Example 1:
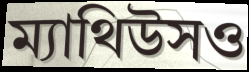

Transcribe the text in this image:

ম্যাথিউসও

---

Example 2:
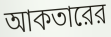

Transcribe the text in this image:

আকতারের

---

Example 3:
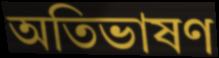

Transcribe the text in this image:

অতিভাষণ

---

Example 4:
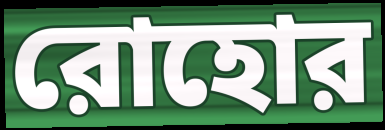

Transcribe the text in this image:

রোহোর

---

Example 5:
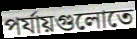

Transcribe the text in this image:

পর্যায়গুলোতে